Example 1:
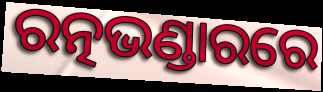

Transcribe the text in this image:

ରତ୍ନଭଣ୍ଡାରରେ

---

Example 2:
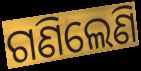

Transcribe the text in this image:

ଗଣିଲେଣି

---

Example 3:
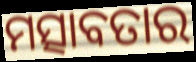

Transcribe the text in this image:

ମତ୍ସାବତାର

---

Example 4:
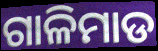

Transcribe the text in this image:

ଗାଳିମାଡ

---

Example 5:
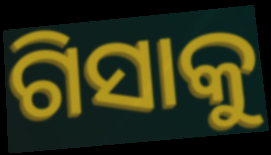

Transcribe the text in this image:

ଗିସାକୁ